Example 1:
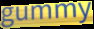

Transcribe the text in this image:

gummy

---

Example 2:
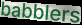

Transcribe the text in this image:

babblers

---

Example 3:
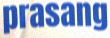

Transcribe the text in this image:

prasang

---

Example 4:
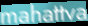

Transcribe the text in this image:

mahattva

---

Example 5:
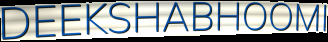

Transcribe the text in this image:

DEEKSHABHOOMI